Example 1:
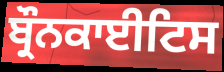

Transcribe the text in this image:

ਬ੍ਰੌਨਕਾਈਟਿਸ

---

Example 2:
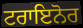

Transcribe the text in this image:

ਟਰਾਇਨੋਰ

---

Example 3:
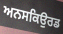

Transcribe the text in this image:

ਅਨਸਕਿਉਰਡ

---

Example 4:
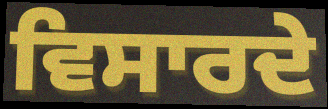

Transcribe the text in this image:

ਵਿਸਾਰਦੇ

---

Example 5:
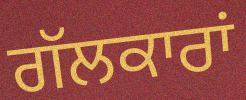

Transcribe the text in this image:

ਗੱਲਕਾਰਾਂ